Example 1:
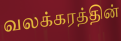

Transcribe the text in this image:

வலக்கரத்தின்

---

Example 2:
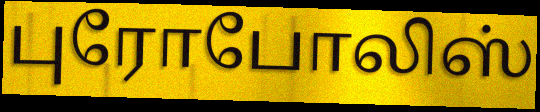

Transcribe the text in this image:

புரோபோலிஸ்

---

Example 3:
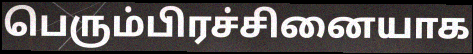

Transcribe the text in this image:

பெரும்பிரச்சினையாக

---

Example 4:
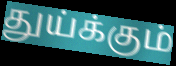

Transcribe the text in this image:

துய்க்கும்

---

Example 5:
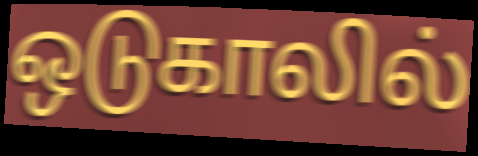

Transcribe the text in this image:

ஒடுகாலில்